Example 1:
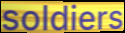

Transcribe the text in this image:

soldiers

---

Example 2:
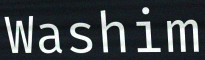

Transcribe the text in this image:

Washim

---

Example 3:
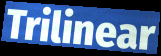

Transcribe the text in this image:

Trilinear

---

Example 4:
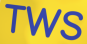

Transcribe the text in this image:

TWS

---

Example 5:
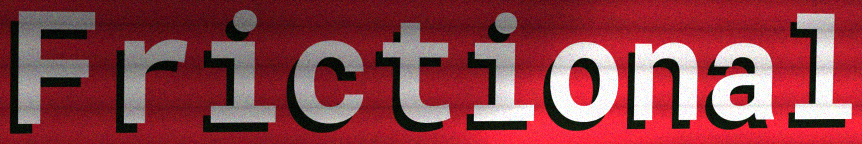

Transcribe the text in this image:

Frictional